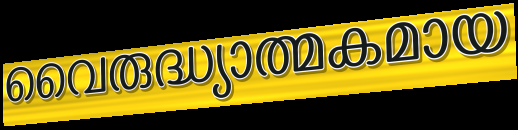
വൈരുദ്ധ്യാത്മകമായ